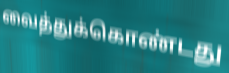
வைத்துக்கொண்டது